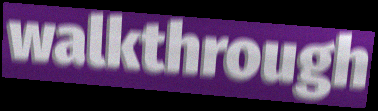
walkthrough